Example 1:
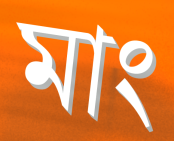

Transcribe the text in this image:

মাং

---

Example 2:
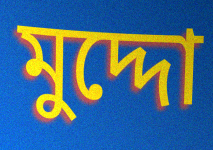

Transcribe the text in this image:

মুদ্দো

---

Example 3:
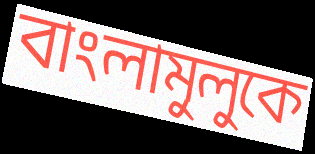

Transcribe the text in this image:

বাংলামুলুকে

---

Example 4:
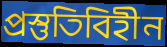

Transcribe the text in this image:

প্রস্তুতিবিহীন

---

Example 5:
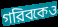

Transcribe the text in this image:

গরিবকেও